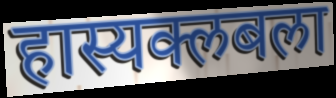
हास्यक्लबला